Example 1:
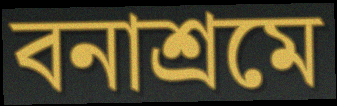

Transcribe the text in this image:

বনাশ্রমে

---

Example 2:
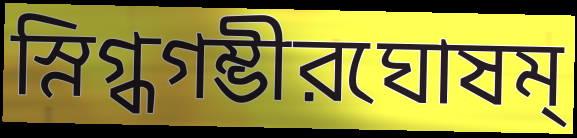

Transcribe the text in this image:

স্নিগ্ধগম্ভীরঘোষম্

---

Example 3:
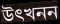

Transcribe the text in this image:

উৎখনন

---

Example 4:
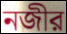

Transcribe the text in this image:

নজীর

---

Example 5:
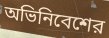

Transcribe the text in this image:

অভিনিবেশের